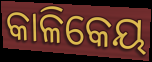
କାଳିକେୟ